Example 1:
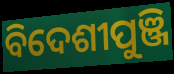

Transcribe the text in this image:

ବିଦେଶୀପୁଞ୍ଜି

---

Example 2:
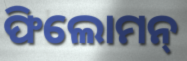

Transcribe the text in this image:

ଫିଲୋମନ୍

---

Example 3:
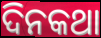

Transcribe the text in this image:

ଦିନକଥା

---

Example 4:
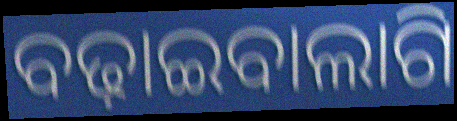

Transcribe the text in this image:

ବଢ଼ାଇବାଲାଗି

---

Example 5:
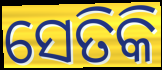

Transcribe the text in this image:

ସେତିକି